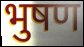
भुषण